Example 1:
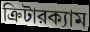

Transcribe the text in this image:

ক্রিটারক্যাম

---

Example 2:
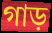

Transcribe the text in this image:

গাড়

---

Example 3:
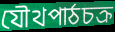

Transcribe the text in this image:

যৌথপাঠচক্র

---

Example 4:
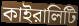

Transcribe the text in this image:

কাইরালিটি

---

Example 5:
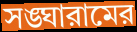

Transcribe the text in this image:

সঙ্ঘারামের